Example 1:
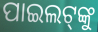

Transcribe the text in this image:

ପାଇଲଟ୍‌ଙ୍କୁ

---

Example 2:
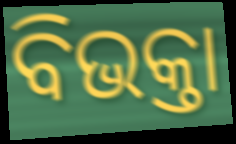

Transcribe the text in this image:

ବିଭକ୍ତା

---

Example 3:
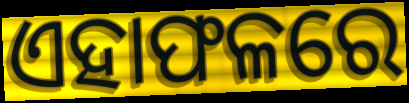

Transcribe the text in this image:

ଏହାଫଳରେ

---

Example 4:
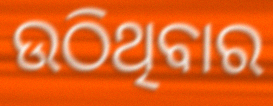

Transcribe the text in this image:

ଉଠିଥିବାର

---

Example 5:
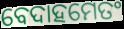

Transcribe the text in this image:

ବେଦାହମେତଂ